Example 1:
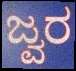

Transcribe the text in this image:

ಜ್ವರ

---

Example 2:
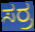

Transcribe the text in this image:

ಸರ್ರ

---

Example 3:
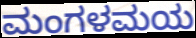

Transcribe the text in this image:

ಮಂಗಳಮಯ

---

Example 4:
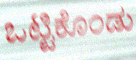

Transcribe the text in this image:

ಒಟ್ಟಿಕೊಂಡು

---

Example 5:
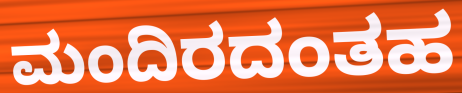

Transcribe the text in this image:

ಮಂದಿರದಂತಹ